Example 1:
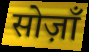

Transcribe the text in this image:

सोज़ाँ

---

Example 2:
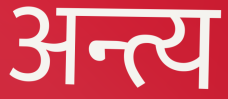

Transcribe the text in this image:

अन्त्य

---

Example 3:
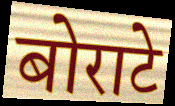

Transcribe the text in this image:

बोराटे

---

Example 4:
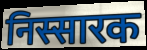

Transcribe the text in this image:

निस्सारक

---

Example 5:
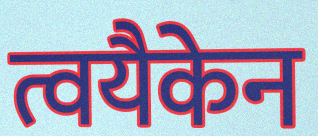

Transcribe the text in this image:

त्वयैकेन